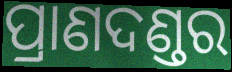
ପ୍ରାଣଦଣ୍ଡର